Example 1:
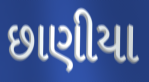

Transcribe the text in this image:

છાણીયા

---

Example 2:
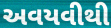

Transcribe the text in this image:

અવયવીથી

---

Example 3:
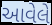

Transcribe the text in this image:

આવેલે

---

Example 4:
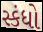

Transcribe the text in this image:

સ્કંધો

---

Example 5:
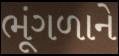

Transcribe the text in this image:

ભૂંગળાને